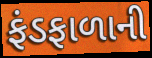
ફંડફાળાની